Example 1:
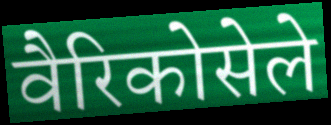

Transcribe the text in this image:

वैरिकोसेले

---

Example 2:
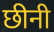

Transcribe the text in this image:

छीनी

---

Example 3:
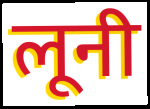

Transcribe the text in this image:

लूनी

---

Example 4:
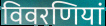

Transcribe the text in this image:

विवरणियां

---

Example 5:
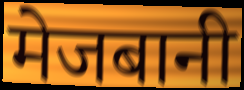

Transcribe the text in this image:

मेजबानी